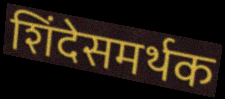
शिंदेसमर्थक